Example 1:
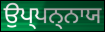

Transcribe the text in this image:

ਉਪ੍ਪਨ੍ਨਾਯ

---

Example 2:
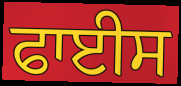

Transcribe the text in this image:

ਫਾਈਸ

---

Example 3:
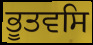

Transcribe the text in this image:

ਭੂਤਵਸਿ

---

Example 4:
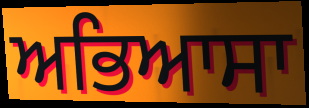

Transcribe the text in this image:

ਅਭਿਆਸਾ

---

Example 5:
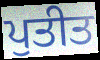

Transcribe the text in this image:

ਪੁਤੀਤ